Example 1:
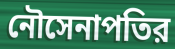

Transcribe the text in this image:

নৌসেনাপতির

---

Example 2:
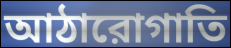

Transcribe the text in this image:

আঠারোগাতি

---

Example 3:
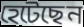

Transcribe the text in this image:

হেটেছেন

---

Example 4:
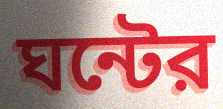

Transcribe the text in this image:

ঘন্টের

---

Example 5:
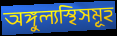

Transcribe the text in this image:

অঙ্গুল্যস্থিসমূহ